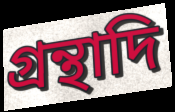
গ্রন্থাদি